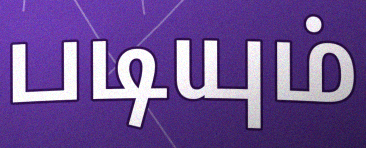
படியும்